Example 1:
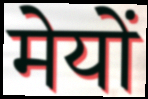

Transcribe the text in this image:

मेयों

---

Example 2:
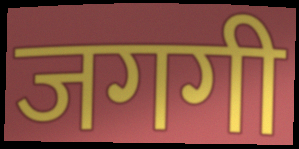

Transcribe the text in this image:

जगगी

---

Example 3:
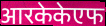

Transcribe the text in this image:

आरकेकेएफ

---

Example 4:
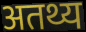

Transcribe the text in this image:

अतथ्य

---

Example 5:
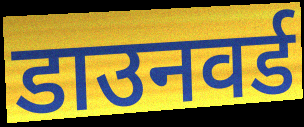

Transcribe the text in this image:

डाउनवर्ड